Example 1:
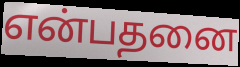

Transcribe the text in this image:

என்பதனை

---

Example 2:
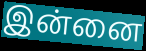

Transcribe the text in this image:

இன்னை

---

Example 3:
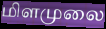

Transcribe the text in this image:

மிளமுலை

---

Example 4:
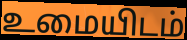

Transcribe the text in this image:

உமையிடம்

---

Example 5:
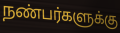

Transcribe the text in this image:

நண்பர்களுக்கு